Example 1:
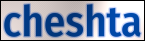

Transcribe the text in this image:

cheshta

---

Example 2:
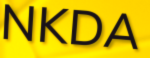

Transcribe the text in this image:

NKDA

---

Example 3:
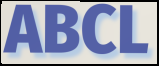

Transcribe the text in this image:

ABCL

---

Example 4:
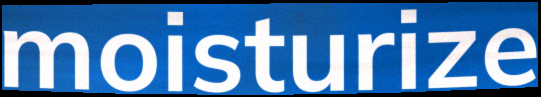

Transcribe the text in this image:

moisturize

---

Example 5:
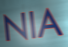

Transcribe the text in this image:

NIA